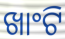
ଖାଂଟି